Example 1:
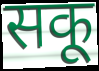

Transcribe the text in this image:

सकू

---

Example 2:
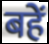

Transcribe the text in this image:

बहें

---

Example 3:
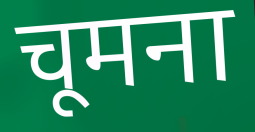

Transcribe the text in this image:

चूमना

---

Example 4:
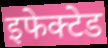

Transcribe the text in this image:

इफेक्टेड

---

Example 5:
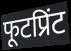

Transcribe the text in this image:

फूटप्रिंट